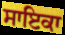
ਸਾਇਕਾ